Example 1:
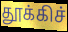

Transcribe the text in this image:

தூக்கிச்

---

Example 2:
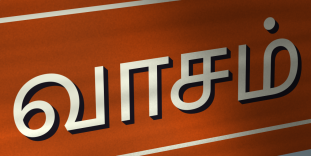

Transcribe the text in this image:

வாசம்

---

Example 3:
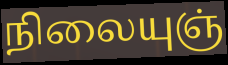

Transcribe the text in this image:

நிலையுஞ்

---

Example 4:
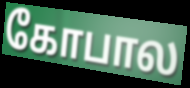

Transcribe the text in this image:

கோபால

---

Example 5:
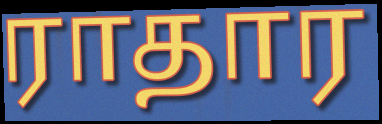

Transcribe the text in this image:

ராதார